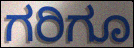
ಗರಿಗೂ